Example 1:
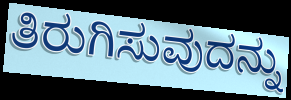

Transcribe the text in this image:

ತಿರುಗಿಸುವುದನ್ನು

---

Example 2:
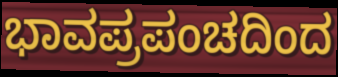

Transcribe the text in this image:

ಭಾವಪ್ರಪಂಚದಿಂದ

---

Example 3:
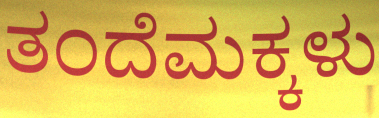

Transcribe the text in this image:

ತಂದೆಮಕ್ಕಳು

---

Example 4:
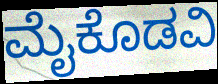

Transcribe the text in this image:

ಮೈಕೊಡವಿ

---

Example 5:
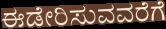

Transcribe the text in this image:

ಈಡೇರಿಸುವವರೆಗೆ